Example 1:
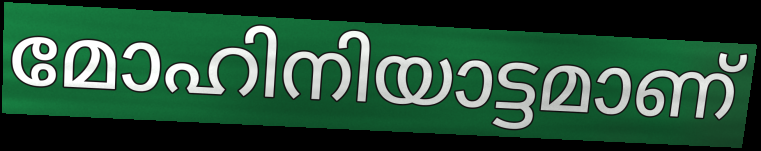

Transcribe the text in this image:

മോഹിനിയാട്ടമാണ്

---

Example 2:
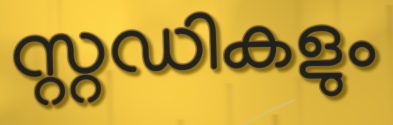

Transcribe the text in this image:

സ്റ്റഡികളും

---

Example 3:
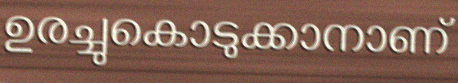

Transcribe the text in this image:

ഉരച്ചുകൊടുക്കാനാണ്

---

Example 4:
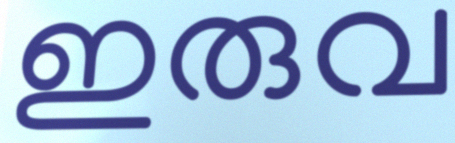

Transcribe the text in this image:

ഇരുവ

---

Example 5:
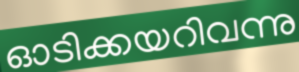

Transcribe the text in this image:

ഓടിക്കയറിവന്നു